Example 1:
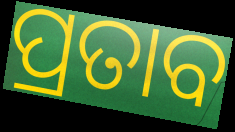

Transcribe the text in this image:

ପ୍ରତାବ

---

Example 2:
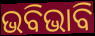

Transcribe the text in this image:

ଭବିଭାବି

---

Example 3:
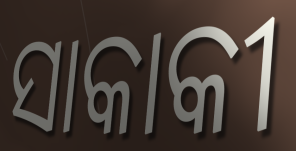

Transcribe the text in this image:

ସାକାକୀ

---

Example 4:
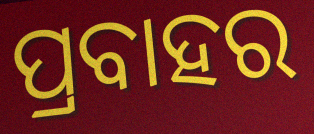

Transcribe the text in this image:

ପ୍ରବାହର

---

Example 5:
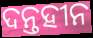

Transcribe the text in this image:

ଦନ୍ତହୀନ